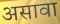
असावा